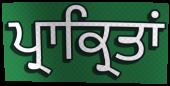
ਪ੍ਰਾਕ੍ਰਿਤਾਂ